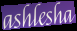
ashlesha